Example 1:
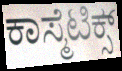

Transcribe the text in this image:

ಕಾಸ್ಮೆಟಿಕ್ಸ್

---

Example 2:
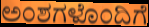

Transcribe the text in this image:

ಅಂಶಗಳೊಂದಿಗೆ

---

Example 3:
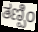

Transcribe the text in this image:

ತಣ್ಪಿಂ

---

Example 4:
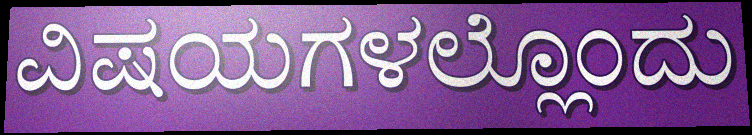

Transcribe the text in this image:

ವಿಷಯಗಳಲ್ಲೊಂದು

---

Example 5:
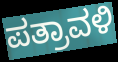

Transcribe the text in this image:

ಪತ್ರಾವಳಿ